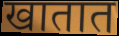
खातात